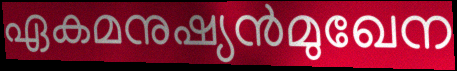
ഏകമനുഷ്യൻമുഖേന